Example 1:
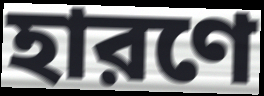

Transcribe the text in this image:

হারণে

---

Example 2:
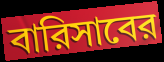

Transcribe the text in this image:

বারিসাবের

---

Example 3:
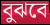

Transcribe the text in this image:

বুঝবে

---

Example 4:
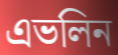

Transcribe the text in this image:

এভলিন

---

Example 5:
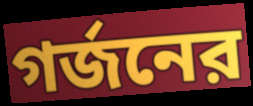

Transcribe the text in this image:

গর্জনের